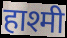
हाश्मी